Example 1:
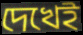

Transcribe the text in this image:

দেখেই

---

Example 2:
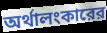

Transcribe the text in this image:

অর্থালংকারের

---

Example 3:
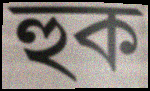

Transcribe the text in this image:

হুক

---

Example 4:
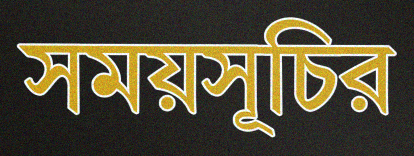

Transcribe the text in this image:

সময়সূচির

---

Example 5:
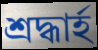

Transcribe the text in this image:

শ্রদ্ধার্হ